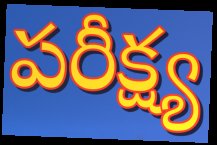
పరీక్ష్య